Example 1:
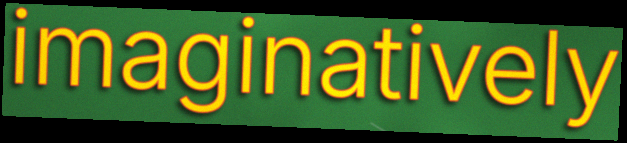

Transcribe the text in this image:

imaginatively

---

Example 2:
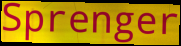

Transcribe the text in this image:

Sprenger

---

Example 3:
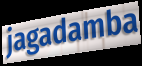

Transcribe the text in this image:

jagadamba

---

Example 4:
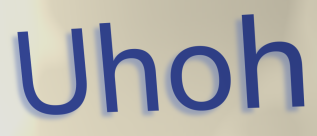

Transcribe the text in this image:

Uhoh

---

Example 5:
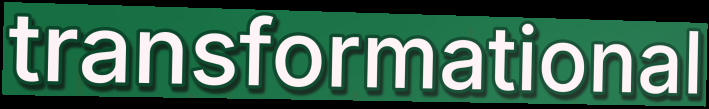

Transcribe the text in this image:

transformational